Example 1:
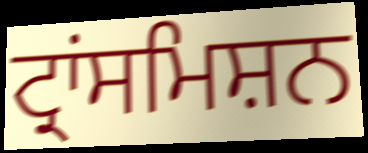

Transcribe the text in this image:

ਟ੍ਰਾਂਸਮਿਸ਼ਨ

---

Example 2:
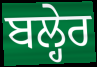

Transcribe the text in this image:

ਬਲ੍ਹੇਰ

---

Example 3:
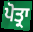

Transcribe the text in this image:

ਪੋਤ੍ਰਾ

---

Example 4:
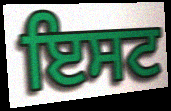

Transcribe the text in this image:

ਇਸਟ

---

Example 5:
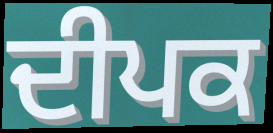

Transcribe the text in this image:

ਦੀਪਕ